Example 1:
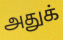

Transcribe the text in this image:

அதுக்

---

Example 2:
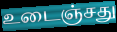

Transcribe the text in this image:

உடைஞ்சது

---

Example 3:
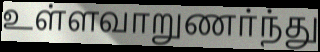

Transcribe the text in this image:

உள்ளவாறுணர்ந்து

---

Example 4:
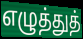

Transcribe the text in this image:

எழுத்துத்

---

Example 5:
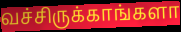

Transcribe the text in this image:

வச்சிருக்காங்களா